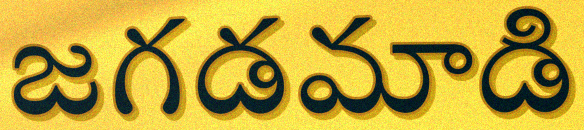
జగడమాడి